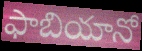
ఫాబియానో